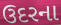
ઉદરના